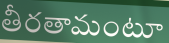
తీరతామంటూ